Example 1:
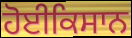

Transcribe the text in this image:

ਹੋਈਕਿਸਾਨ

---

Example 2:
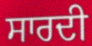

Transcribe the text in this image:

ਸਾਰਦੀ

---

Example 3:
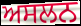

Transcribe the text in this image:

ਅਸਲਨ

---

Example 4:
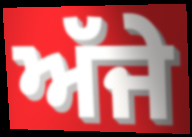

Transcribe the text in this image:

ਅੱਜੇ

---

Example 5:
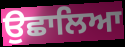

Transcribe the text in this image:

ਉਛਾਲਿਆ